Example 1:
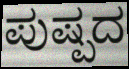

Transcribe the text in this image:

ಪುಷ್ಪದ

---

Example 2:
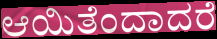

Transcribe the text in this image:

ಆಯಿತೆಂದಾದರೆ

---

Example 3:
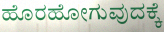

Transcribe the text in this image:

ಹೊರಹೋಗುವುದಕ್ಕೆ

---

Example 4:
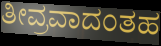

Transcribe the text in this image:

ತೀವ್ರವಾದಂತಹ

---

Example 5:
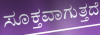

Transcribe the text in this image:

ಸೂಕ್ತವಾಗುತ್ತದೆ